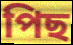
পিছ